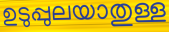
ഉടുപ്പുലയാതുള്ള